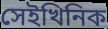
সেইখিনিক